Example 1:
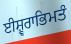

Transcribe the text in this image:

ਈਸ਼੍ਵਰਾਭਿਮਤੰ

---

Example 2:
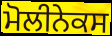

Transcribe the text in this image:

ਮੋਲੀਨੇਕਸ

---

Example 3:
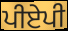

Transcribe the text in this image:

ਪੀਏਪੀ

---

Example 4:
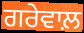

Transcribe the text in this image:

ਗਰੇਵਾਲ਼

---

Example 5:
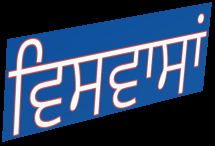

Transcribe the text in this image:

ਵਿਸਵਾਸਾਂ